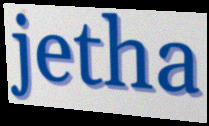
jetha